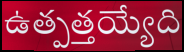
ఉత్పత్తయ్యేది